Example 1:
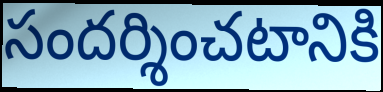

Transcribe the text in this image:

సందర్శించటానికి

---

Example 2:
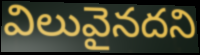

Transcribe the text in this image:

విలువైనదని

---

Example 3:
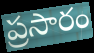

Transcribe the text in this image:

ప్రసారం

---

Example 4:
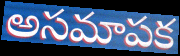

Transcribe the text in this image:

అసమాపక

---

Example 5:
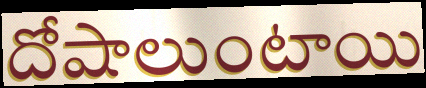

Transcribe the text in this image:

దోషాలుంటాయి